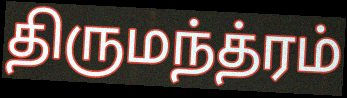
திருமந்த்ரம்